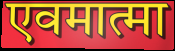
एवमात्मा